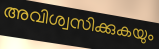
അവിശ്വസിക്കുകയും